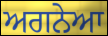
ਅਗਨੇਆ